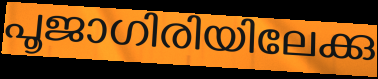
പൂജാഗിരിയിലേക്കു